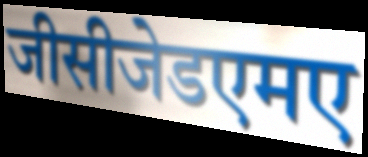
जीसीजेडएमए